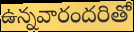
ఉన్నవారందరితో